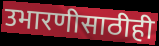
उभारणीसाठीही